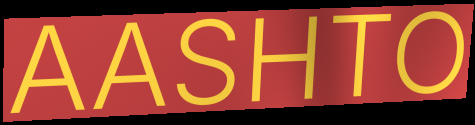
AASHTO